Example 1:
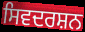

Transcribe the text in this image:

ਸਿਵਦਰਸ਼ਨ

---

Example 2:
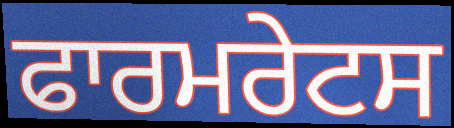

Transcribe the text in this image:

ਫਾਰਮਰੇਟਸ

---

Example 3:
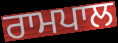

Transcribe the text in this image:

ਰਾਮਪਾਲ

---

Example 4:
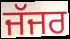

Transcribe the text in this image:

ਜੱਜਰ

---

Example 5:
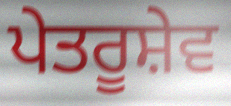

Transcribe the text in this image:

ਪੇਤਰੂਸ਼ੇਵ